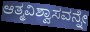
ಆತ್ಮವಿಶ್ವಾಸವನ್ನೇ